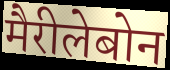
मैरीलेबोन